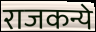
राजकन्ये